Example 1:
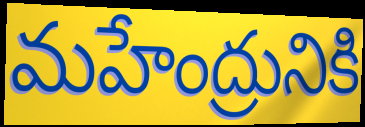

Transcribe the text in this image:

మహేంద్రునికి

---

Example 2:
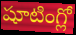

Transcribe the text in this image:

షూటింగ్లో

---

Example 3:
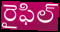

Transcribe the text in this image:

రైఫిల్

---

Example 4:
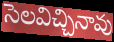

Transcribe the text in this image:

సెలవిచ్చినావు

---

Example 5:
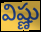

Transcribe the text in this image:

విష్ణు